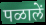
पळालें